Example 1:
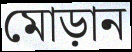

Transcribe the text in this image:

মোড়ান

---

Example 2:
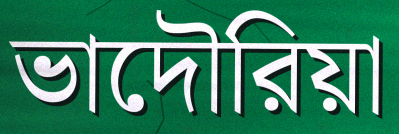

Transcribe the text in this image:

ভাদৌরিয়া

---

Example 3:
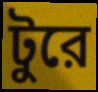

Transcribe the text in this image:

টুরে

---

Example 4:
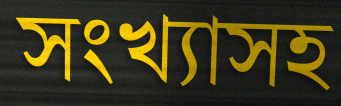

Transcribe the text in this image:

সংখ্যাসহ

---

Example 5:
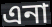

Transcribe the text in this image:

এনা